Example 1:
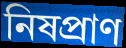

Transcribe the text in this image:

নিষপ্রাণ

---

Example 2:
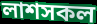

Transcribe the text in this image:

লাশসকল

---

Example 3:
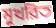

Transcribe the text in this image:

মুখরিত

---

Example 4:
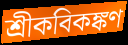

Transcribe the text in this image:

শ্রীকবিকঙ্কণ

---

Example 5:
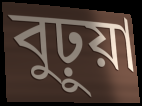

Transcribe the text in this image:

বুঢ়ুয়া